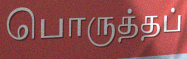
பொருத்தப்